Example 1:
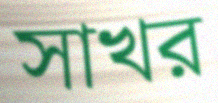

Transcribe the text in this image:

সাখর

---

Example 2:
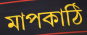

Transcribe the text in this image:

মাপকাঠি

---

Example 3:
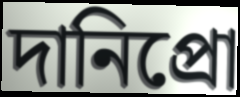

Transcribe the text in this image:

দানিপ্রো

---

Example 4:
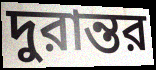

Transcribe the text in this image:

দুরান্তর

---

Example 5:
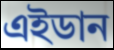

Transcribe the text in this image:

এইডান